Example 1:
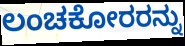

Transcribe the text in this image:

ಲಂಚಕೋರರನ್ನು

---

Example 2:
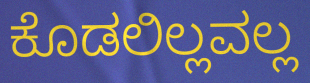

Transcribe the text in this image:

ಕೊಡಲಿಲ್ಲವಲ್ಲ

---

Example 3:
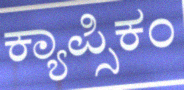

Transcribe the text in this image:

ಕ್ಯಾಪ್ಸಿಕಂ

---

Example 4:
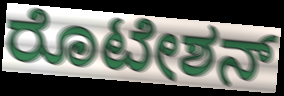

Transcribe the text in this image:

ರೊಟೇಶನ್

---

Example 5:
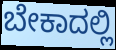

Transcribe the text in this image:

ಬೇಕಾದಲ್ಲಿ